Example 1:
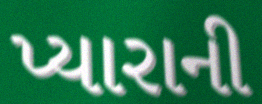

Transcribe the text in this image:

પ્યારાની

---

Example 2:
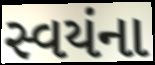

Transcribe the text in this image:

સ્વયંના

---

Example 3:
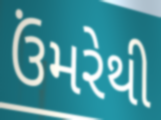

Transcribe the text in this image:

ઉંમરેથી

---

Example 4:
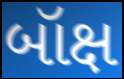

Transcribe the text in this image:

બૉક્ષ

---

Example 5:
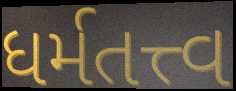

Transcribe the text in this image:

ધર્મતત્ત્વ